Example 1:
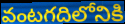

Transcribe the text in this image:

వంటగదిలోనికి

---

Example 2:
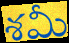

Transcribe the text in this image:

శమీ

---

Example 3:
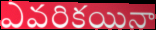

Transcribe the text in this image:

ఎవరికయినా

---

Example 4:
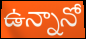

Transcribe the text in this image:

ఉన్నానో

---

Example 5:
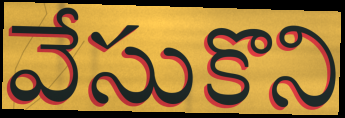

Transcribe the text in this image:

వేసుకొని